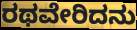
ರಥವೇರಿದನು